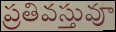
ప్రతివస్తువూ